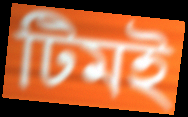
টিমই